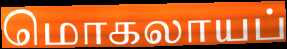
மொகலாயப்